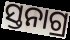
ସ୍ତନାଗ୍ର